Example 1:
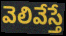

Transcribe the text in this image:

వెలివేస్తే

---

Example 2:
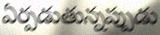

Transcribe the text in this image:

ఏర్పడుతున్నప్పుడు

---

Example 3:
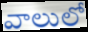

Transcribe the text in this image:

వాలులో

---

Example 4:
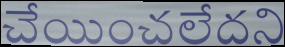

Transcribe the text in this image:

చేయించలేదని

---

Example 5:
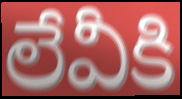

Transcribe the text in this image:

లేవీకి